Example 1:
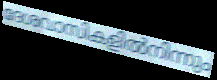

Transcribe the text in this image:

ദേശവാസികളിൽനിന്നും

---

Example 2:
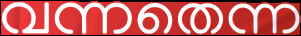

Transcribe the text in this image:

വന്നതെന്ന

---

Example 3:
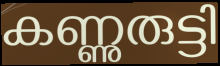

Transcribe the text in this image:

കണ്ണുരുട്ടി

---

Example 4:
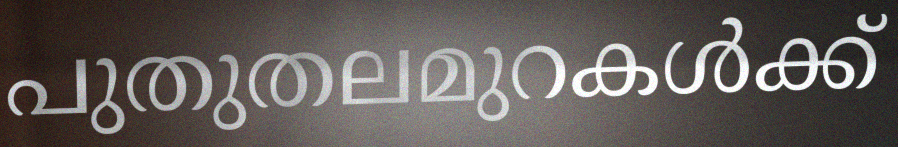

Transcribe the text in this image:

പുതുതലമുറകൾക്ക്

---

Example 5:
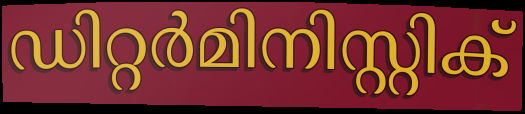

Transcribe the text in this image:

ഡിറ്റർമിനിസ്റ്റിക്